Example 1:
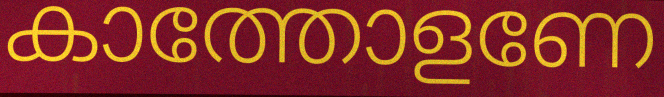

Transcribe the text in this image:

കാത്തോളണേ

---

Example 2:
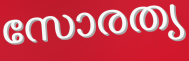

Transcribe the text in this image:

സോരത്യ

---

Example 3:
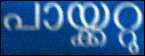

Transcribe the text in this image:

പായ്ക്കറ്റു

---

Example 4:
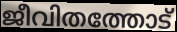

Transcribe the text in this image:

ജീവിതത്തോട്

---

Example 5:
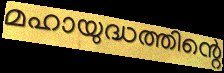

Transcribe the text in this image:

മഹായുദ്ധത്തിന്റെ